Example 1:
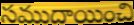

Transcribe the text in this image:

సముదాయించి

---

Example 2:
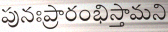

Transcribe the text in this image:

పునఃప్రారంభిస్తామని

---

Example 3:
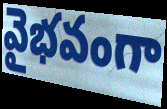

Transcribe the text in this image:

వైభవంగా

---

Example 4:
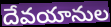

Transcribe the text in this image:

దేవయానుల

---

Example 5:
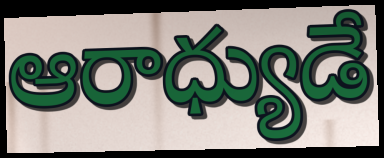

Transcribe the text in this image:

ఆరాధ్యుడే